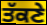
ਤੱਕਣੇ